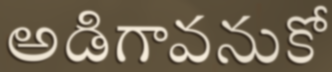
అడిగావనుకో